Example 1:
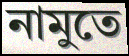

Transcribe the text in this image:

নামুতে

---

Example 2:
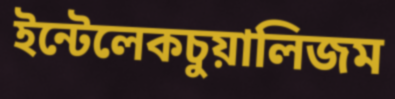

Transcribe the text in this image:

ইন্টেলেকচুয়ালিজম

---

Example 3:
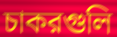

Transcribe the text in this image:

চাকরগুলি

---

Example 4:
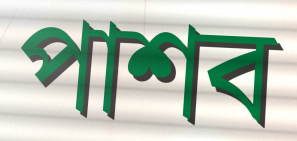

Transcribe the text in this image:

পাশব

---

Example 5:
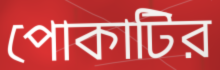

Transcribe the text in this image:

পোকাটির